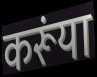
करूंया